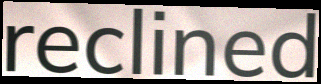
reclined